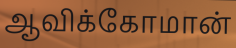
ஆவிக்கோமான்